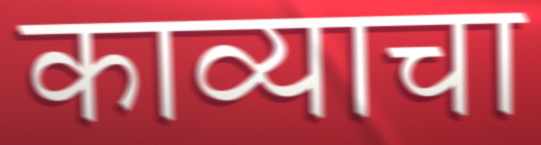
काव्याचा